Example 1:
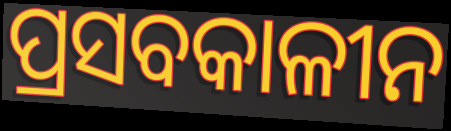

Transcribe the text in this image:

ପ୍ରସବକାଳୀନ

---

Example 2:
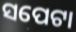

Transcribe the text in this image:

ସପେଟା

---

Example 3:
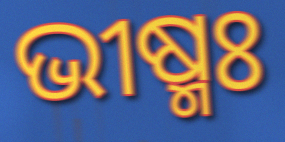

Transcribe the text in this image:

ଭୀଷ୍ମଃ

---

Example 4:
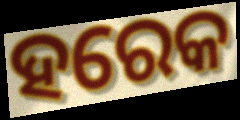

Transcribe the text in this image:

ହରେକ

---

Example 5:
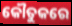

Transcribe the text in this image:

କୌତୁକରେ